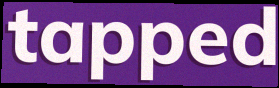
tapped